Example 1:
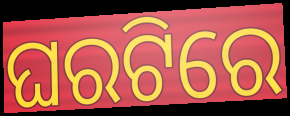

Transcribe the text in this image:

ଘରଟିରେ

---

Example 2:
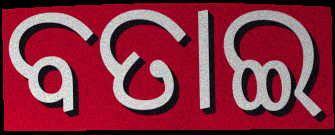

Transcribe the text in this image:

ବତାଇ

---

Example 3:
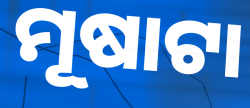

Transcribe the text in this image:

ମୂଷାଟା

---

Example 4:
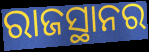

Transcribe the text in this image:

ରାଜସ୍ଥାନର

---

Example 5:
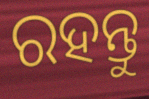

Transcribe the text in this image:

ରହନ୍ତୁ